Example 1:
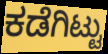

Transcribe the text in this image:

ಕಡೆಗಿಟ್ಟು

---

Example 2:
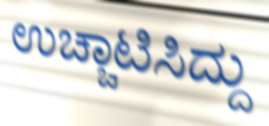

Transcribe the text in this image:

ಉಚ್ಚಾಟಿಸಿದ್ದು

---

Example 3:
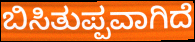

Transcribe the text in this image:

ಬಿಸಿತುಪ್ಪವಾಗಿದೆ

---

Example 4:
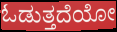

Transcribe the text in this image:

ಓಡುತ್ತದೆಯೋ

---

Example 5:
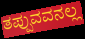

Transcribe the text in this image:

ತಪ್ಪುವವನಲ್ಲ